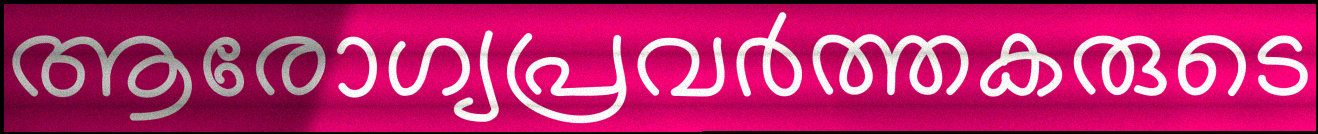
ആരോഗ്യപ്രവർത്തകരുടെ